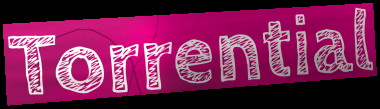
Torrential